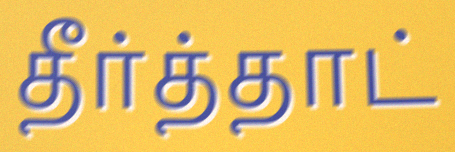
தீர்த்தாட்